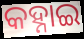
କହ୍ନାଇ